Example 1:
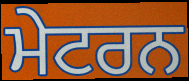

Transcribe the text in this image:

ਮੇਟਰਨ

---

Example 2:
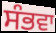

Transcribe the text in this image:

ਸੰਭਵਾ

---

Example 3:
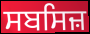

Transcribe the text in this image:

ਸਬਸਿਜ਼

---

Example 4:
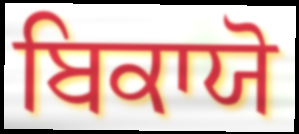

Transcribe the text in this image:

ਬਿਕਾਯੋ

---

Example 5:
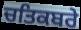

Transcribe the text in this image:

ਚਤਿਕਬਰੇ